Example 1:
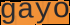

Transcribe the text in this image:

gayo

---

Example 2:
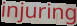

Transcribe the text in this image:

injuring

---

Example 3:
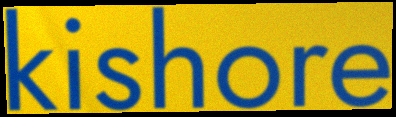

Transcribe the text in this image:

kishore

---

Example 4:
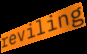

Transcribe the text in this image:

reviling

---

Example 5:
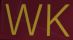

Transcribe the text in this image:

WK